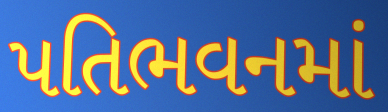
પતિભવનમાં